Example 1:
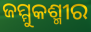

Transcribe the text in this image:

ଜମ୍ମୁକଶ୍ମୀର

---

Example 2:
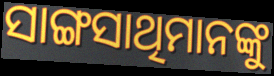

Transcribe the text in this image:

ସାଙ୍ଗସାଥିମାନଙ୍କୁ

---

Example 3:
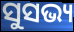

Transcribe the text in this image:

ସୁସଭ୍ୟ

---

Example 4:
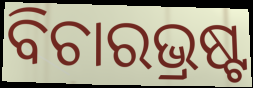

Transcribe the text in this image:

ବିଚାରଭ୍ରଷ୍ଟ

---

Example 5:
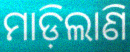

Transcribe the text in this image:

ମାଡ଼ିଲାଣି